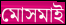
মোসমাই